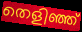
തെളിഞ്ഞ്